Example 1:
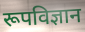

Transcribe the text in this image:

रूपविज्ञान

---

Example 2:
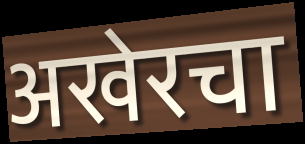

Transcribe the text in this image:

अखेरचा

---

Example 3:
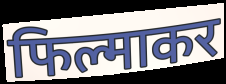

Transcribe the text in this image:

फिल्माकर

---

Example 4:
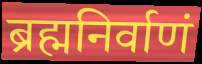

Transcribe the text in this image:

ब्रह्मनिर्वाणं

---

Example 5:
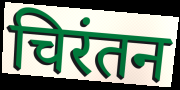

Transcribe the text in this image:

चिरंतन